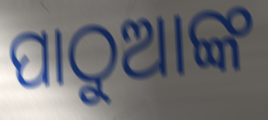
ପାଠୁଆଙ୍କ